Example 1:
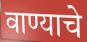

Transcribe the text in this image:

वाण्याचे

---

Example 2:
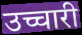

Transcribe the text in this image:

उच्चारी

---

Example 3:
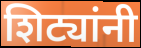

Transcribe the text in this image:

शिट्यांनी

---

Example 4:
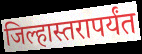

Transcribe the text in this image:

जिल्हास्तरापर्यंत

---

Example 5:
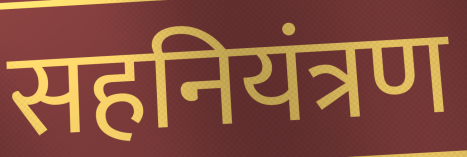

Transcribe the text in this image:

सहनियंत्रण